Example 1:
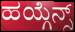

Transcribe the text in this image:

ಹಯ್ಗೆನ್ಸ್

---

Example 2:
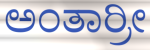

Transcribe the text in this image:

ಅಂತಾರ್ರೀ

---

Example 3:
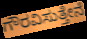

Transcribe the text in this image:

ಗೌರವಿಸುತ್ತೇನೆ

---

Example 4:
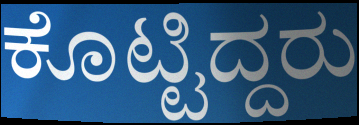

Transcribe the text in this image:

ಕೊಟ್ಟಿದ್ದರು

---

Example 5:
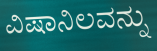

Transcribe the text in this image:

ವಿಷಾನಿಲವನ್ನು